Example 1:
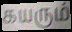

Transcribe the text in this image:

கயரும்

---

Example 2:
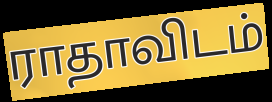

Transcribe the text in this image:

ராதாவிடம்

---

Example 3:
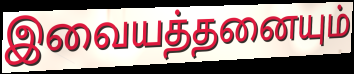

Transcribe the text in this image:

இவையத்தனையும்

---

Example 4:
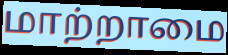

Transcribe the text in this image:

மாற்றாமை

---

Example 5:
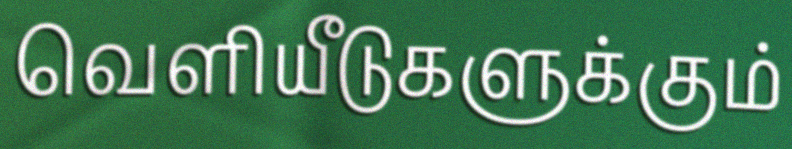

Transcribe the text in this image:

வெளியீடுகளுக்கும்